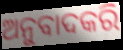
ଅନୁବାଦକରି